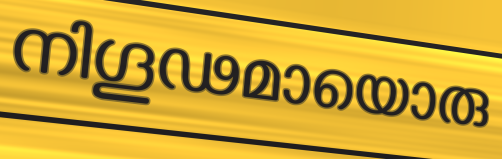
നിഗൂഢമായൊരു